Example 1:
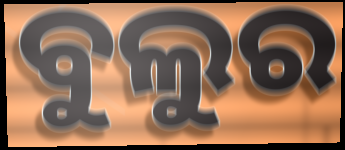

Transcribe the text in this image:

ବୁଲୁର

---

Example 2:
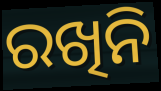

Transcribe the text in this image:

ରଖିନି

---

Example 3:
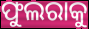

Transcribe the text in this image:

ଫୁଲରାକୁ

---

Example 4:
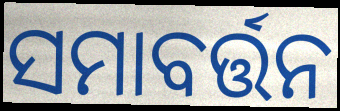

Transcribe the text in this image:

ସମାବର୍ତ୍ତନ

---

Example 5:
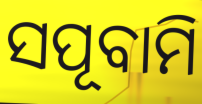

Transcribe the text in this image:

ସପୂବାମି